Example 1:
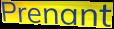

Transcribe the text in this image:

Prenant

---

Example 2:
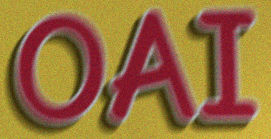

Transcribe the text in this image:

OAI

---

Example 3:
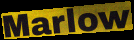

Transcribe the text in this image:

Marlow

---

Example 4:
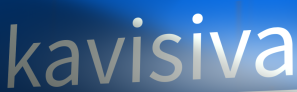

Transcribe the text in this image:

kavisiva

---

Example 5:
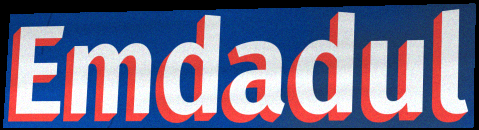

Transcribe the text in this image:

Emdadul